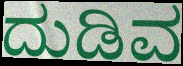
ದುಡಿವ